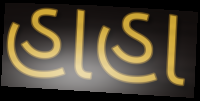
હાહા